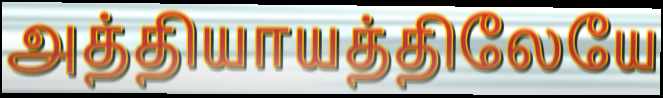
அத்தியாயத்திலேயே